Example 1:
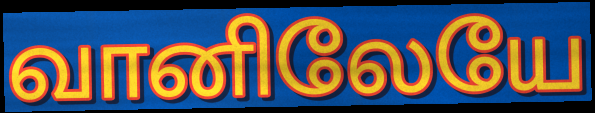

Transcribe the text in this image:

வானிலேயே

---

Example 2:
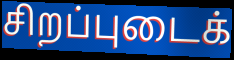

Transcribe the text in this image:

சிறப்புடைக்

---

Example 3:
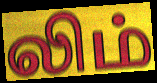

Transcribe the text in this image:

லிம்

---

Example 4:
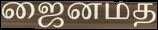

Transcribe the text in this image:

ஜைனமத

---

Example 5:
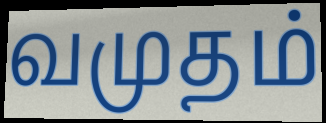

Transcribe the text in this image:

வமுதம்